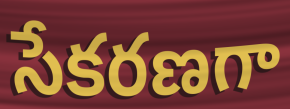
సేకరణగా